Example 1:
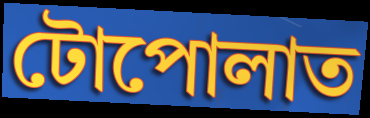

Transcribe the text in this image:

টোপোলাত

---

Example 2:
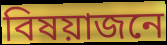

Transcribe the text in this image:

বিষয়াজনে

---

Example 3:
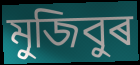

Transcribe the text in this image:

মুজিবুৰ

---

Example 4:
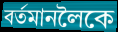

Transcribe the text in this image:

বৰ্তমানলৈকে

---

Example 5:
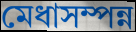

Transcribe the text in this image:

মেধাসম্পন্ন